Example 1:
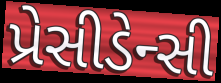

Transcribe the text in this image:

પ્રેસીડેન્સી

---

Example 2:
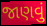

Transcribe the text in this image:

જાણવું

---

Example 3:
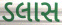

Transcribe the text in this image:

ડલાસ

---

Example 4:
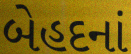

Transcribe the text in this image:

બેહદનાં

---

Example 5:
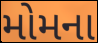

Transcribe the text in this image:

મોમના